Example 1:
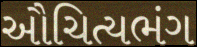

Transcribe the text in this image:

ઔચિત્યભંગ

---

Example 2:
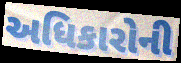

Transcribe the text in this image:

અધિકારોની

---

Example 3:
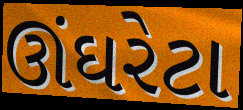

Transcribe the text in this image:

ઊંઘરેટા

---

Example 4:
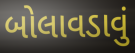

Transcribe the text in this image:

બોલાવડાવું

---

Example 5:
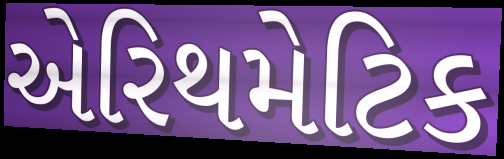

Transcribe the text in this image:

એરિથમેટિક